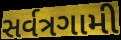
સર્વત્રગામી